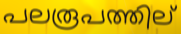
പലരൂപത്തില്